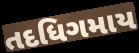
તદધિગમાય